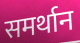
समर्थान